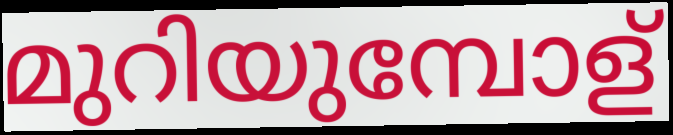
മുറിയുമ്പോള്